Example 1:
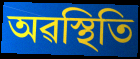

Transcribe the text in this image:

অৱস্থিতি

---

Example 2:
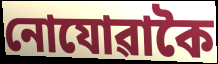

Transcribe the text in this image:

নোযোৱাকৈ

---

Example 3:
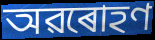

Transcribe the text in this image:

অৱৰোহণ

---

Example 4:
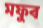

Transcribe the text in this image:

মফুৰ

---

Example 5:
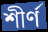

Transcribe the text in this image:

শীৰ্ণ